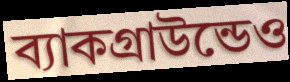
ব্যাকগ্রাউন্ডেও